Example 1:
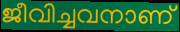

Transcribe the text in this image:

ജീവിച്ചവനാണ്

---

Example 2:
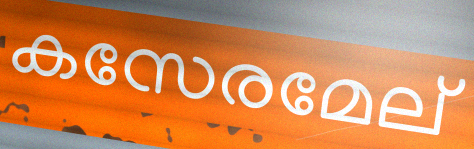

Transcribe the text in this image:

കസേരമേല്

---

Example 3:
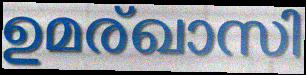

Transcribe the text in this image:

ഉമര്ഖാസി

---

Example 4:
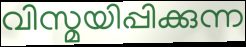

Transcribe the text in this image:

വിസ്മയിപ്പിക്കുന്ന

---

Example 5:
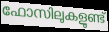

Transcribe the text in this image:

ഫോസിലുകളുണ്ട്